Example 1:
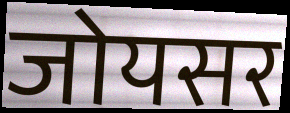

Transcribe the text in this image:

जोयसर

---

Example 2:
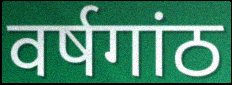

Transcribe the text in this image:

वर्षगांठ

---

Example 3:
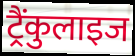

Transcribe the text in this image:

ट्रैंकुलाइज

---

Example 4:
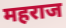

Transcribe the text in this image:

महराज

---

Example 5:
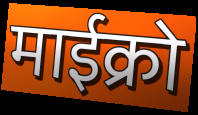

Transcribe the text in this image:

माईक्रो